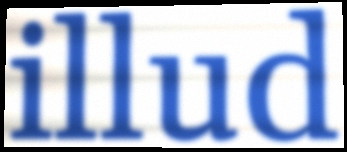
illud